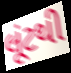
લૂંટથી